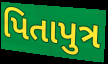
પિતાપુત્ર